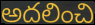
అదలించి